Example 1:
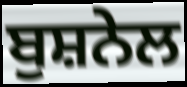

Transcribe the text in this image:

ਬੁਸ਼ਨੇਲ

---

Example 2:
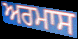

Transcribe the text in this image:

ਅਰਮਾਸ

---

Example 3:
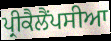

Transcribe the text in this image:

ਪ੍ਰੀਕੈਲੈਂਪਸੀਆ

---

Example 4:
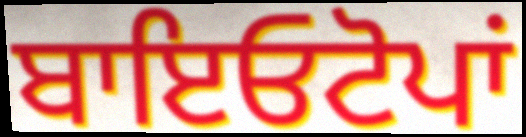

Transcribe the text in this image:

ਬਾਇਓਟੋਪਾਂ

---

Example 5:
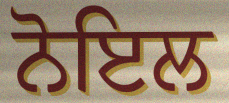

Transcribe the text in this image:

ਨੋਇਲ